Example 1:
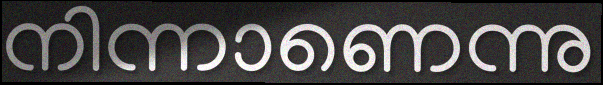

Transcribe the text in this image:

നിന്നാണെന്നു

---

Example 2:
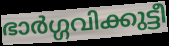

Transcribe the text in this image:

ഭാർഗ്ഗവിക്കുട്ടീ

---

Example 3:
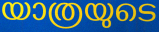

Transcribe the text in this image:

യാത്രയുടെ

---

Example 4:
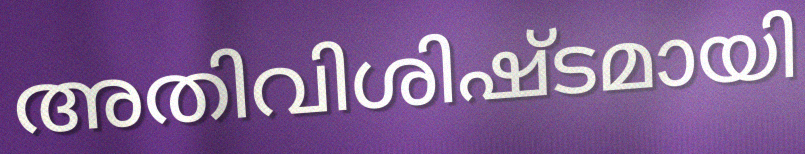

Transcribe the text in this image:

അതിവിശിഷ്ടമായി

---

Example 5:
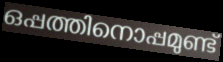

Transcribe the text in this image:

ഒപ്പത്തിനൊപ്പമുണ്ട്